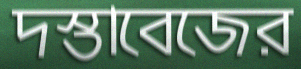
দস্তাবেজের